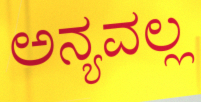
ಅನ್ಯವಲ್ಲ